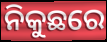
ନିକୁଛରେ